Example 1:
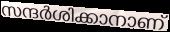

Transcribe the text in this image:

സന്ദർശിക്കാനാണ്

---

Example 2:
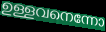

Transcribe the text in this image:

ഉള്ളവനെന്നോ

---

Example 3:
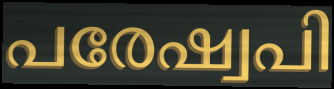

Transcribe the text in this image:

പരേഷ്വപി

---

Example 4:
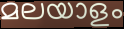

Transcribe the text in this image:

മലയാളം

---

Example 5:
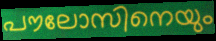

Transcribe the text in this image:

പൗലോസിനെയും